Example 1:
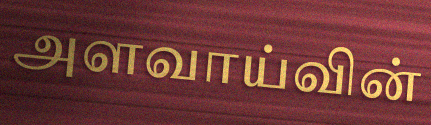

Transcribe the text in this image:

அளவாய்வின்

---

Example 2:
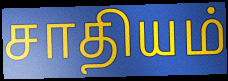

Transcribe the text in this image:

சாதியம்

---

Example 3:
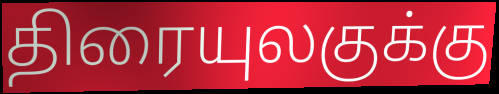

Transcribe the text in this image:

திரையுலகுக்கு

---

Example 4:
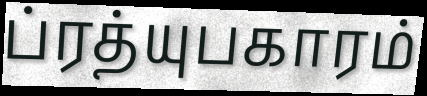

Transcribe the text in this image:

ப்ரத்யுபகாரம்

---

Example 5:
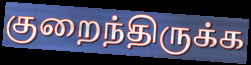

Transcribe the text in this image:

குறைந்திருக்க